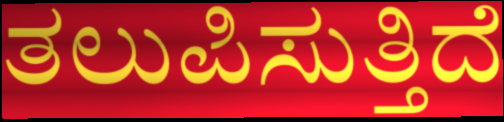
ತಲುಪಿಸುತ್ತಿದೆ